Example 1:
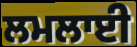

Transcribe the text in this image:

ਲਮਲਾਈ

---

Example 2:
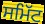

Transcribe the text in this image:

ਸਮਿੱਟ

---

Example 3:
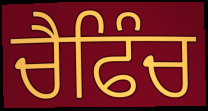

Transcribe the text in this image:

ਚੈਫਿੰਚ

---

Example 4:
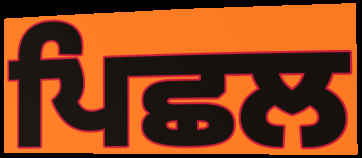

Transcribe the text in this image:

ਪਿਛਲ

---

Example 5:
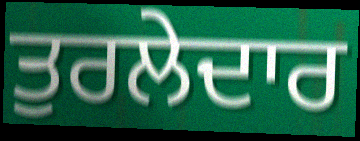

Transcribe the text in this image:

ਤੁਰਲੇਦਾਰ